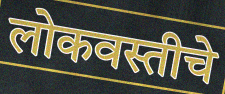
लोकवस्तीचे